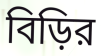
বিড়ির